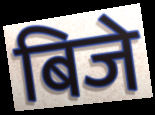
बिजे